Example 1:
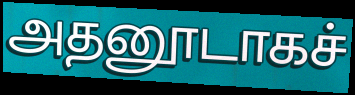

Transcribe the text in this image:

அதனூடாகச்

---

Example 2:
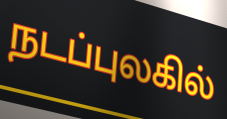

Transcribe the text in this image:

நடப்புலகில்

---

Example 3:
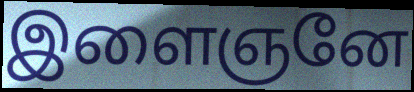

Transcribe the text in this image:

இளைஞனே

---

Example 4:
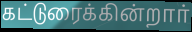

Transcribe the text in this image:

கட்டுரைக்கின்றார்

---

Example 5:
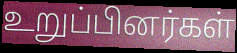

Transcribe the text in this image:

உறுப்பினர்கள்